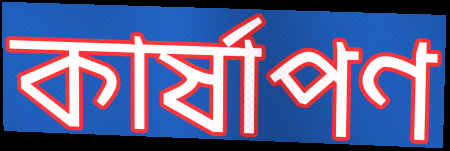
কার্ষাপণ